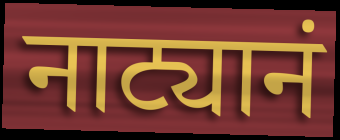
नाट्यानं